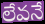
లేవనే